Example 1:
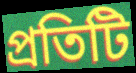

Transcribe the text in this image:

প্রতিটি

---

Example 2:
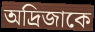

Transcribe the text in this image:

অদ্রিজাকে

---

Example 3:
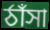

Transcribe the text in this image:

ঠাঁসা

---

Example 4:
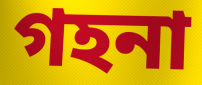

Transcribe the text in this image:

গহনা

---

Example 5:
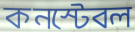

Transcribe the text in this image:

কনস্টেবল